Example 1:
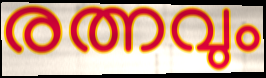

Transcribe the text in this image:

രത്നവും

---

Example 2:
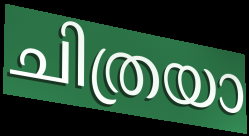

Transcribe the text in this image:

ചിത്രയാ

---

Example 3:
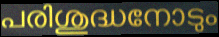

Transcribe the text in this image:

പരിശുദ്ധനോടും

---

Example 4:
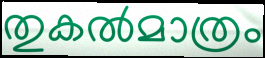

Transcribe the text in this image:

തുകൽമാത്രം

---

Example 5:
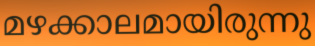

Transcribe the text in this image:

മഴക്കാലമായിരുന്നു